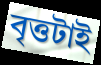
বৃত্তটাই